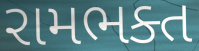
રામભક્ત